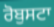
ਰੋਬੁਸਟਾ